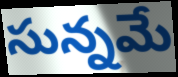
సున్నమే